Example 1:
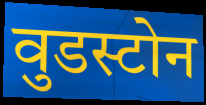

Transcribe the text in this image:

वुडस्टोन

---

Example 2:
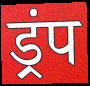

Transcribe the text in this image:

ड्रंप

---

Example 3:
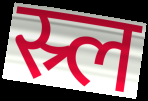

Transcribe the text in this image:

स्र्ल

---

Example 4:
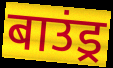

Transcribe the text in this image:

बाउंड्र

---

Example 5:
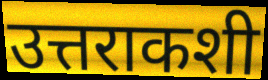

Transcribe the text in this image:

उत्तराकशी